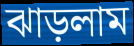
ঝাড়লাম